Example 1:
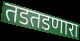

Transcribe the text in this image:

तडतडणारा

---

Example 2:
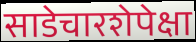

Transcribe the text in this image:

साडेचारशेपेक्षा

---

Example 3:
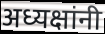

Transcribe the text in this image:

अध्यक्षांनी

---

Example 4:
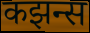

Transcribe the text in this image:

कझन्स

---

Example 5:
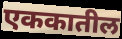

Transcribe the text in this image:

एककातील